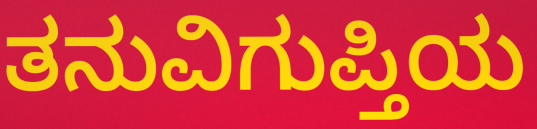
ತನುವಿಗುಪ್ತಿಯ